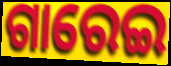
ଗାରେଇ